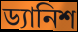
ড্যানিশ